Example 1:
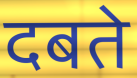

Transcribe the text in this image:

दबते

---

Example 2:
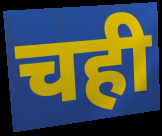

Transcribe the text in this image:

चही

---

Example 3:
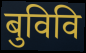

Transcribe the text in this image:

बुविवि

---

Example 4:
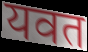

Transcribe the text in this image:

यवत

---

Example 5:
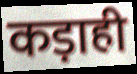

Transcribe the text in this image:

कड़ाही